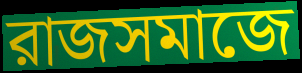
রাজসমাজে